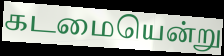
கடமையென்று